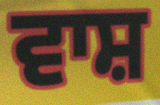
ਵਾਸ਼